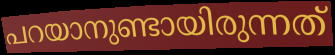
പറയാനുണ്ടായിരുന്നത്